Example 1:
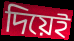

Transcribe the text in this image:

দিয়েই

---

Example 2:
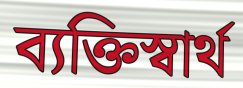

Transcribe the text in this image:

ব্যক্তিস্বার্থ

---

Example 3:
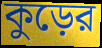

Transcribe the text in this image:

কুড়ের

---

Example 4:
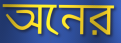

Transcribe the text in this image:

অনের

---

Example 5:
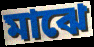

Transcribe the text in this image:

মাঝে